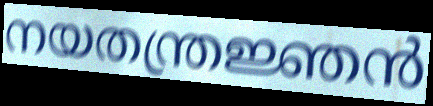
നയതന്ത്രജ്ഞൻ